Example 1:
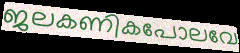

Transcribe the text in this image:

ജലകണികപോലവേ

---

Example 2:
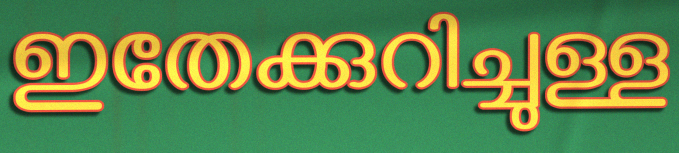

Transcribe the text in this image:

ഇതേക്കുറിച്ചുള്ള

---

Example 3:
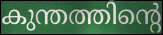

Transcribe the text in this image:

കുന്തത്തിന്റെ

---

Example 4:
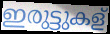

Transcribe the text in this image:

ഇരുട്ടുകള്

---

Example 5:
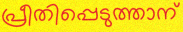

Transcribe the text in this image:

പ്രീതിപ്പെടുത്താന്